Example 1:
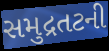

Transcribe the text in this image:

સમુદ્રતટની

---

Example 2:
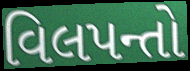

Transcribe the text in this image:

વિલપન્તો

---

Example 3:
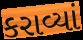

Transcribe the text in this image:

કરાવ્યાં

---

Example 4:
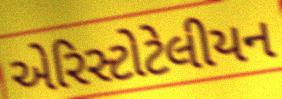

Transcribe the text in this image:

એરિસ્ટોટેલીયન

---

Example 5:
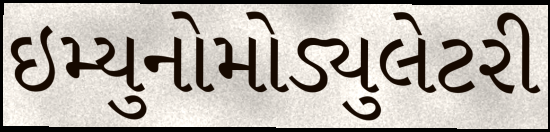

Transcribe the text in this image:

ઇમ્યુનોમોડ્યુલેટરી